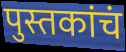
पुस्तकांचं